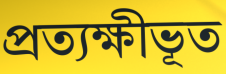
প্রত্যক্ষীভূত